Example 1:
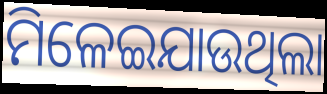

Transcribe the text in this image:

ମିଳେଇଯାଉଥିଲା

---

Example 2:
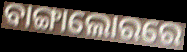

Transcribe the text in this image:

ବାଙ୍ଗାଲୋରରେ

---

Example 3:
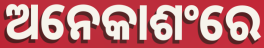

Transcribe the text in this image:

ଅନେକାଶଂରେ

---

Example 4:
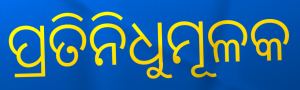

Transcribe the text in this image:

ପ୍ରତିନିଧୁମୂଳକ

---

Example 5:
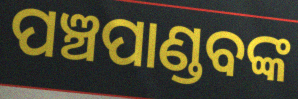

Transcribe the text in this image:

ପଞ୍ଚପାଣ୍ଡବଙ୍କ